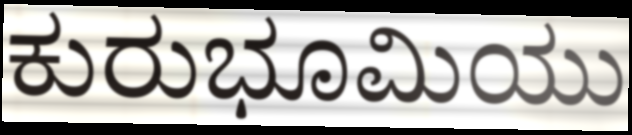
ಕುರುಭೂಮಿಯು